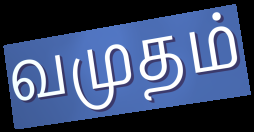
வமுதம்